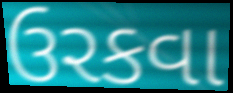
ઉરકવા